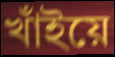
খাঁইয়ে